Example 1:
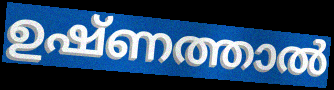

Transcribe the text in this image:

ഉഷ്ണത്താൽ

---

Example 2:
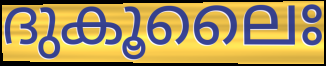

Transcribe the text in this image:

ദുകൂലൈഃ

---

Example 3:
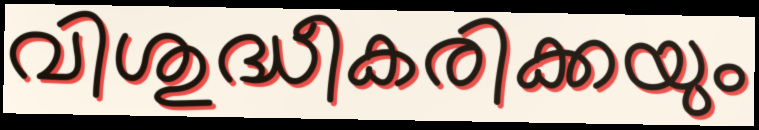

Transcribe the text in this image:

വിശുദ്ധീകരിക്കയും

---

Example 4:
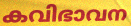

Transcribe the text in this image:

കവിഭാവന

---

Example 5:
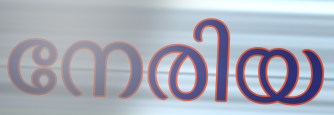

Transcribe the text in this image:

നേരിയ